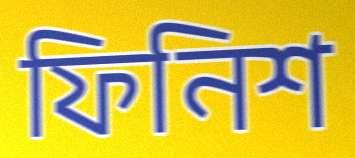
ফিনিশ